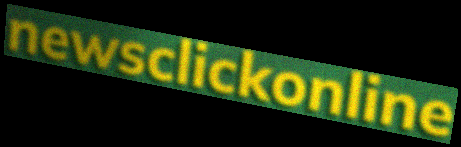
newsclickonline